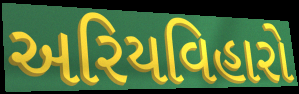
અરિયવિહારો